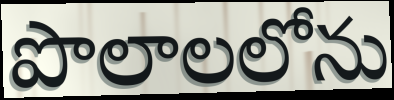
పొలాలలోను